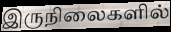
இருநிலைகளில்